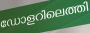
ഡോളറിലെത്തി